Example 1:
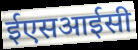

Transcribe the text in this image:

ईएसआईसी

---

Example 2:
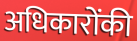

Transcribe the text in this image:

अधिकारोंकी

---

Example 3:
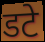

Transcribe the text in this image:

डटे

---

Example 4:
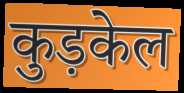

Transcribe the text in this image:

कुड़केल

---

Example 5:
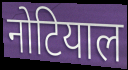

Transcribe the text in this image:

नोटियाल